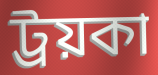
ট্রয়কা